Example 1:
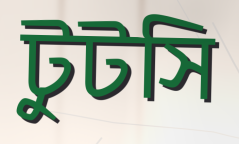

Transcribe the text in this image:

টুটসি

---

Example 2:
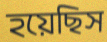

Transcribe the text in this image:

হয়েছিস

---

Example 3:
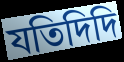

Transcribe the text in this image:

যতিদিদি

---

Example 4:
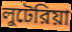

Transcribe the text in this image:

লুটেরিয়া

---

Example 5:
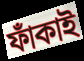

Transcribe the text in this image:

ফাঁকাই